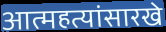
आत्महत्यांसारखे